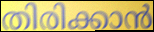
തിരിക്കാൻ